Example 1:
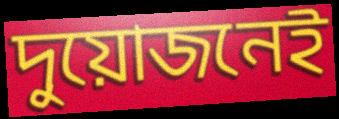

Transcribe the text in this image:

দুয়োজনেই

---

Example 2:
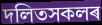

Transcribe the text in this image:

দলিতসকলৰ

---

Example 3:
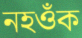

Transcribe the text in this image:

নহওঁক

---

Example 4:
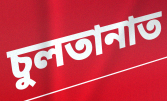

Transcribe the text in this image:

চুলতানাত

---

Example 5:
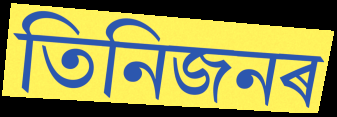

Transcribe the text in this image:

তিনিজনৰ